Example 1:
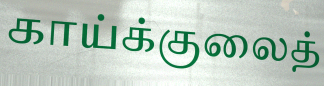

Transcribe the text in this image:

காய்க்குலைத்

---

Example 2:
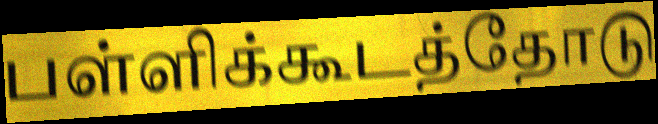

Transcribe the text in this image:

பள்ளிக்கூடத்தோடு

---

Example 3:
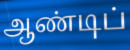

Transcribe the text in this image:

ஆண்டிப்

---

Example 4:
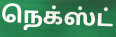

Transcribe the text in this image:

நெக்ஸ்ட்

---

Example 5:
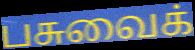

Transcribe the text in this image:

பசுவைக்